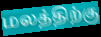
மலத்திற்கு